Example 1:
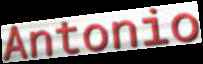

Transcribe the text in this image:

Antonio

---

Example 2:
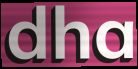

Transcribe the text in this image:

dha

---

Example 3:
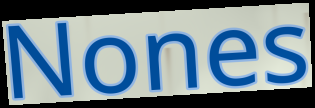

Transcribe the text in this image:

Nones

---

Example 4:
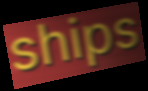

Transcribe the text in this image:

ships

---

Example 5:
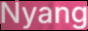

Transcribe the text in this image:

Nyang